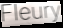
Fleury